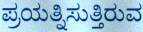
ಪ್ರಯತ್ನಿಸುತ್ತಿರುವ